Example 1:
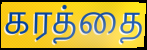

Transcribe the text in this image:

கரத்தை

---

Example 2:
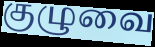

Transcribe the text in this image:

குழுவை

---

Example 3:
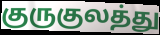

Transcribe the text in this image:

குருகுலத்து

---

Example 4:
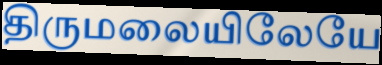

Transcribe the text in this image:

திருமலையிலேயே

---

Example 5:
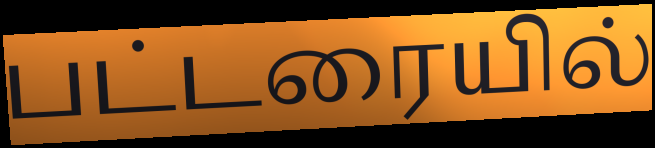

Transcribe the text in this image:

பட்டரையில்